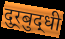
दुर्बुद्धी